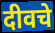
दीवचे